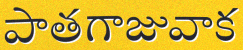
పాతగాజువాక